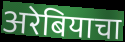
अरेबियाचा